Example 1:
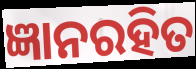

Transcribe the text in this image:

ଜ୍ଞାନରହିତ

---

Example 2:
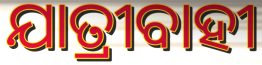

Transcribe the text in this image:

ଯାତ୍ରୀବାହୀ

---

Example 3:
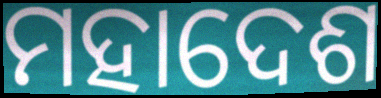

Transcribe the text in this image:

ମହାଦେଶ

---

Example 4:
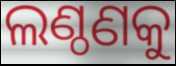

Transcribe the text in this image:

ଲଣ୍ଠଣକୁ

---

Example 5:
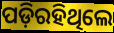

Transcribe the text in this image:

ପଡ଼ିରହିଥିଲେ